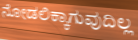
ನೋಡಲಿಕ್ಕಾಗುವುದಿಲ್ಲ